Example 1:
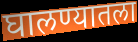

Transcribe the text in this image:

घालण्यातला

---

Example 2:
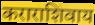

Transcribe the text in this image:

कराराशिवाय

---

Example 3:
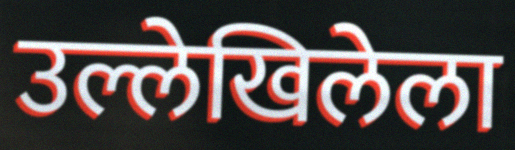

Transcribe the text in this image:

उल्लेखिलेला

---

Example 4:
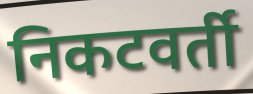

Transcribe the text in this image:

निकटवर्ती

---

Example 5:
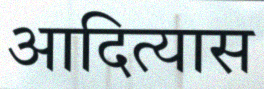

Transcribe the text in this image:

आदित्यास